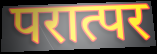
परात्‍पर